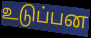
உடுப்பன